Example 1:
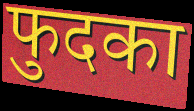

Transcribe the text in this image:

फुदका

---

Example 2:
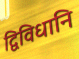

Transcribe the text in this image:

द्विविधानि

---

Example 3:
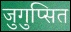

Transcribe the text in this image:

जुगुप्सित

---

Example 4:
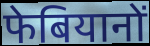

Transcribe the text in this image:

फेबियानों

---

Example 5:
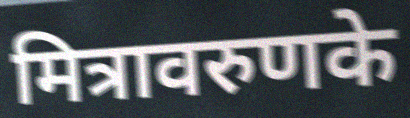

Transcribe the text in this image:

मित्रावरुणके